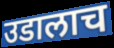
उडालाच